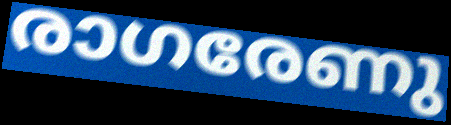
രാഗരേണു